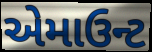
એમાઉન્ટ